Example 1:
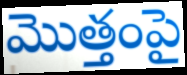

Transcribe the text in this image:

మొత్తంపై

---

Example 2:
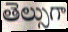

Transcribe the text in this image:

తెల్సుగా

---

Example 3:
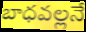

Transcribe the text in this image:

బాధవల్లనే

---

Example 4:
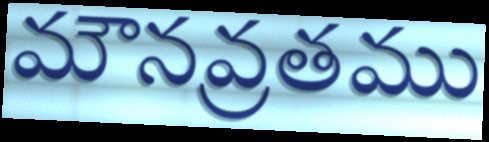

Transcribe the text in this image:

మౌనవ్రతము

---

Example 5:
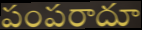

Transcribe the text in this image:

పంపరాదూ